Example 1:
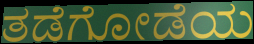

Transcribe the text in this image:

ತಡೆಗೋಡೆಯ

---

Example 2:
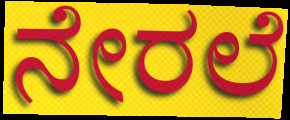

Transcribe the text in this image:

ನೇರಲೆ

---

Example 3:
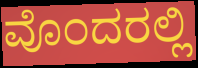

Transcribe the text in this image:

ವೊಂದರಲ್ಲಿ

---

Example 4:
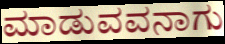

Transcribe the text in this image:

ಮಾಡುವವನಾಗು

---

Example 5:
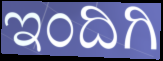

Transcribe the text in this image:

ಇಂದಿಗಿ